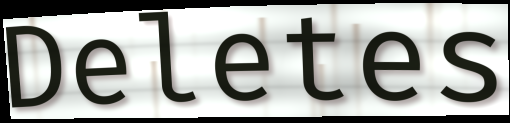
Deletes